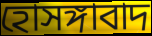
হোসঙ্গাবাদ